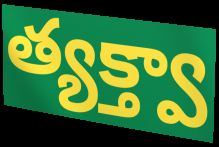
త్యక్త్వా